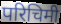
परिचिमी